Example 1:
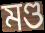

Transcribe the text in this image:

মণ্ড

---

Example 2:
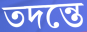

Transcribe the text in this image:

তদন্তে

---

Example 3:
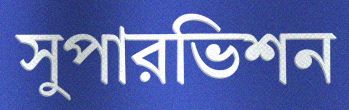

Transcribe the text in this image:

সুপারভিশন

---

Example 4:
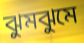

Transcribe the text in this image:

ঝুমঝুমে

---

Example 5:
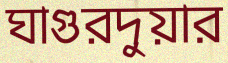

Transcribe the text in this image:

ঘাগুরদুয়ার